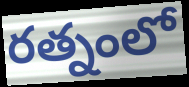
రత్నంలో